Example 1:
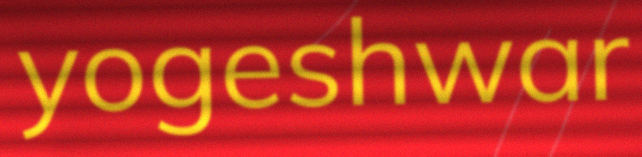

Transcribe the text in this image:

yogeshwar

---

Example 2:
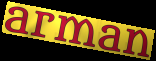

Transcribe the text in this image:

arman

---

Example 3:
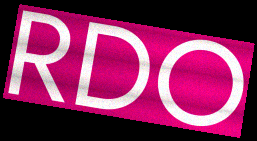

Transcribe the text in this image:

RDO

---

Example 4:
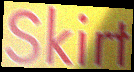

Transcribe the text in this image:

Skirt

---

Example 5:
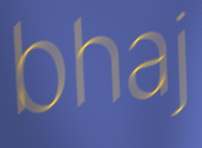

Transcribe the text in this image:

bhaj